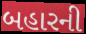
બહારની